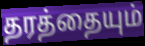
தரத்தையும்